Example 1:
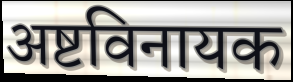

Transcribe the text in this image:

अष्टविनायक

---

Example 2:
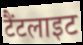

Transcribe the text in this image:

टैंटलाइट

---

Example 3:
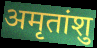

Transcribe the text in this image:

अमृतांशु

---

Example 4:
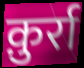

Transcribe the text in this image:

क़ुर्रा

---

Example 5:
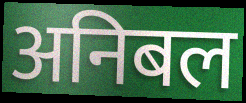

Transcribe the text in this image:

अनिबल